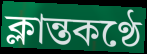
ক্লান্তকণ্ঠে